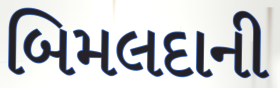
બિમલદાની